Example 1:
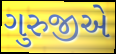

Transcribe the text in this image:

ગુરુજીએ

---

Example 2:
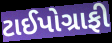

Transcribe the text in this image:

ટાઈપોગ્રાફી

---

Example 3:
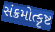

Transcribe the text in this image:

સંક્રમોત્કૃષ્ટ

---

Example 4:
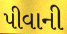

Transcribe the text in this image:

પીવાની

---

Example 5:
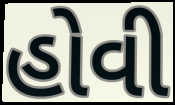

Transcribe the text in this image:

હોવી